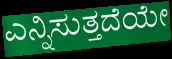
ಎನ್ನಿಸುತ್ತದೆಯೇ